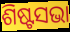
ଶିଷ୍ଟସଭା